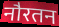
नौरतन